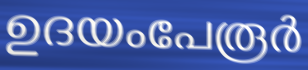
ഉദയംപേരൂർ